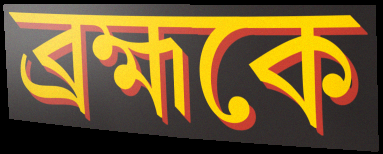
ব্রহ্মকে